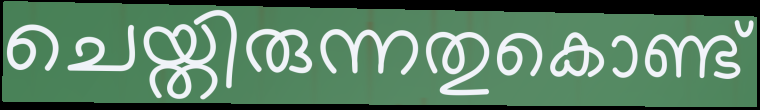
ചെയ്തിരുന്നതുകൊണ്ട്